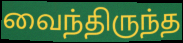
வைந்திருந்த